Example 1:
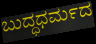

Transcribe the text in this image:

ಬುದ್ಧಧರ್ಮದ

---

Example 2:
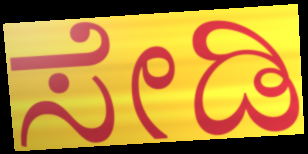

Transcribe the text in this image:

ಸೇಡಿ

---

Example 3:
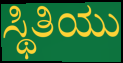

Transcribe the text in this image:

ಸ್ಥಿತಿಯು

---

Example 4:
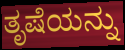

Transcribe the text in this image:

ತೃಷೆಯನ್ನು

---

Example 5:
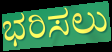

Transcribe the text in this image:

ಭರಿಸಲು